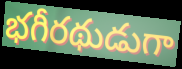
భగీరథుడుగా